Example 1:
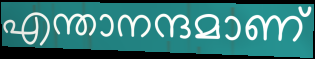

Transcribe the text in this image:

എന്താനന്ദമാണ്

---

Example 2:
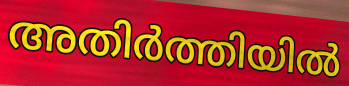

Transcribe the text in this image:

അതിർത്തിയിൽ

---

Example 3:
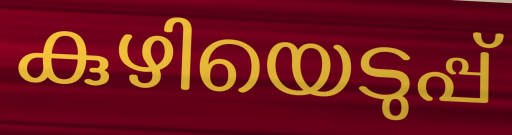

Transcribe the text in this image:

കുഴിയെടുപ്പ്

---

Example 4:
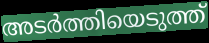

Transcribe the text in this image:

അടർത്തിയെടുത്ത്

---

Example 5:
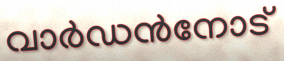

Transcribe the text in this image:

വാർഡൻനോട്